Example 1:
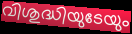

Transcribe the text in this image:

വിശുദ്ധിയുടേയും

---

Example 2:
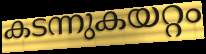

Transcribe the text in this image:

കടന്നുകയറ്റം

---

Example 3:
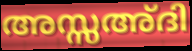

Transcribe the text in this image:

അസ്സഅ്ദി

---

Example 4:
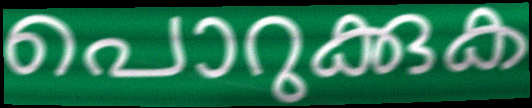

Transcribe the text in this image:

പൊറുക്കുക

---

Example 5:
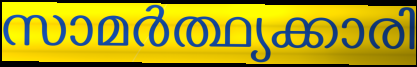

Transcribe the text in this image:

സാമർത്ഥ്യക്കാരി